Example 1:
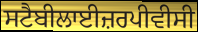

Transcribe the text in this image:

ਸਟੈਬੀਲਾਈਜ਼ਰਪੀਵੀਸੀ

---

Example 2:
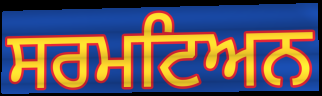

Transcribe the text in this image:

ਸਰਮਟਿਅਨ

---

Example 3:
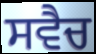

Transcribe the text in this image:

ਸਵੈਚ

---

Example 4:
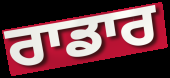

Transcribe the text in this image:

ਰਾਡਾਰ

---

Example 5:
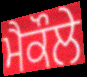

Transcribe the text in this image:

ਮੈਕੌਲੇ